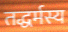
तद्धर्मस्य